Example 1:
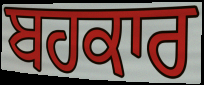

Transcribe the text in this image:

ਬਹਕਾਰ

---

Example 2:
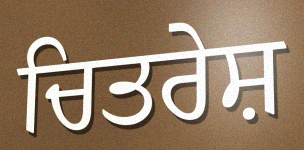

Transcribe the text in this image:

ਚਿਤਰੇਸ਼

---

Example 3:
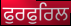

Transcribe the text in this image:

ਫੁਰਫੁਰਿਲ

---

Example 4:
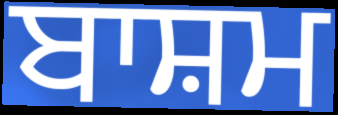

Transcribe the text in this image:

ਬਾਸ਼ਮ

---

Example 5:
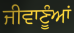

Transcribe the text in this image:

ਜੀਵਾਣੂੰਆਂ